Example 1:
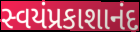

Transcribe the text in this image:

સ્વયંપ્રકાશાનંદ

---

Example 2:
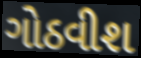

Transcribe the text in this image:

ગોઠવીશ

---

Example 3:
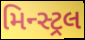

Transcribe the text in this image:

મિન્સ્ટ્રલ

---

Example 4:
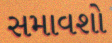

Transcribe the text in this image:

સમાવશો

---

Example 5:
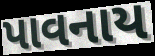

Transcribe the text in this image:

પાવનાય